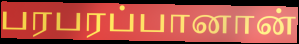
பரபரப்பானான்